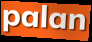
palan